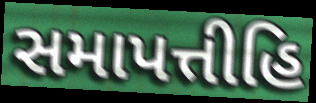
સમાપત્તીહિ